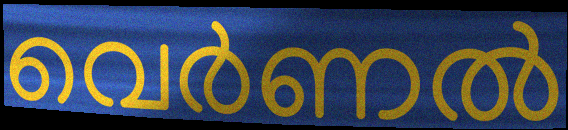
വെർണൽ